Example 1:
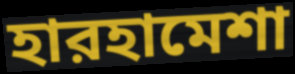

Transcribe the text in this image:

হারহামেশা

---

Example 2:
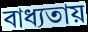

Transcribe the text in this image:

বাধ্যতায়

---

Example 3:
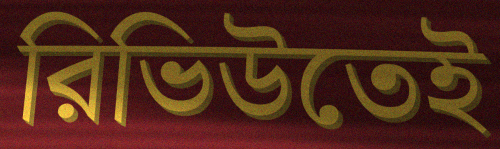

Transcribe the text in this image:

রিভিউতেই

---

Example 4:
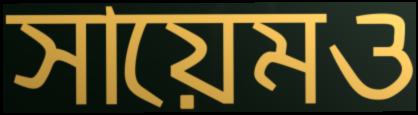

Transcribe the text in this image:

সায়েমও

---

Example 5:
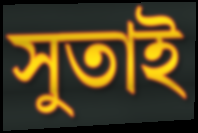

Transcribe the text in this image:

সুতাই